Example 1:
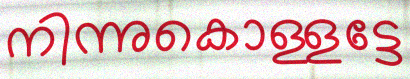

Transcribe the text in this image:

നിന്നുകൊള്ളട്ടേ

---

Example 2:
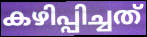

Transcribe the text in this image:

കഴിപ്പിച്ചത്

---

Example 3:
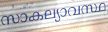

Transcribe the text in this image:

സാകല്യാവസ്ഥ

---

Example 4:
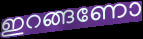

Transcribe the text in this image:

ഇറങ്ങണോ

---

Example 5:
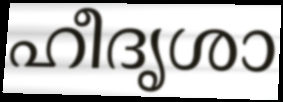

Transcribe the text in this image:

ഹീദൃശാ